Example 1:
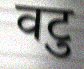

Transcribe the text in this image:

वटु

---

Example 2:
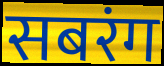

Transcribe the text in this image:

सबरंग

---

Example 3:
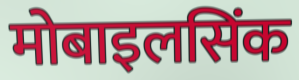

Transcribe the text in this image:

मोबाइलसिंक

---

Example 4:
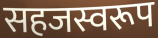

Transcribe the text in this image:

सहजस्वरूप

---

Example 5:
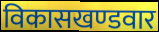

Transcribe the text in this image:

विकासखण्‍डवार